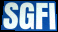
SGFI